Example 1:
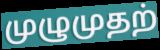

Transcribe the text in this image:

முழுமுதற்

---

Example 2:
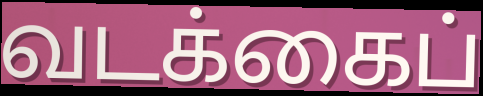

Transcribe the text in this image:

வடக்கைப்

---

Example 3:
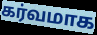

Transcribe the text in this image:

கர்வமாக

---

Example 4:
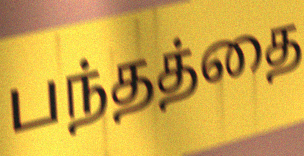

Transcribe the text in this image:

பந்தத்தை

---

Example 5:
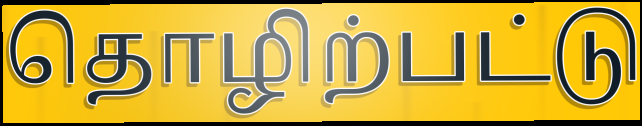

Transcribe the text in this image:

தொழிற்பட்டு